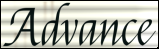
Advance